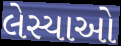
લેસ્યાઓ